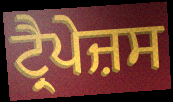
ਟ੍ਰੈਪੇਜ਼ਸ